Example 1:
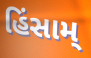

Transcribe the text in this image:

હિંસામ્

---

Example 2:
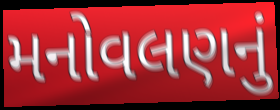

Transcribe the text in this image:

મનોવલણનું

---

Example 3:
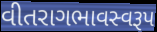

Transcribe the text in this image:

વીતરાગભાવસ્વરૂપ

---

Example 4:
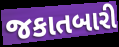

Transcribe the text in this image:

જકાતબારી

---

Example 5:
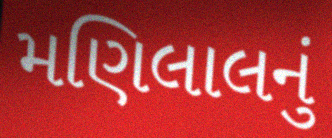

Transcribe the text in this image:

મણિલાલનું